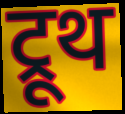
ट्रूथ